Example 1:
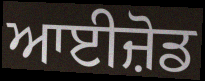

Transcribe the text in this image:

ਆਈਜ਼ੋਡ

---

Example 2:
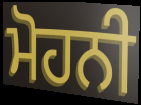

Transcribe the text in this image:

ਮੋਹਨੀ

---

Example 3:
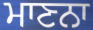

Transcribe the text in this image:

ਮਾਣਨਾ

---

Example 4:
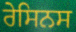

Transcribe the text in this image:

ਰੇਸਿਨਸ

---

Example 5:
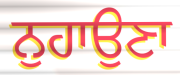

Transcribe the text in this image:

ਨੁਹਾਉਣਾ